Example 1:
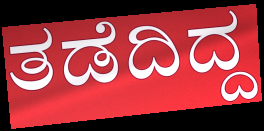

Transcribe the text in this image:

ತಡೆದಿದ್ದ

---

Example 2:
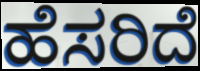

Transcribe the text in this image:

ಹೆಸರಿದೆ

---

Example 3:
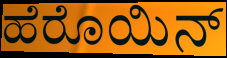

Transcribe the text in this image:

ಹೆರೊಯಿನ್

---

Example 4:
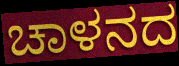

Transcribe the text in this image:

ಚಾಳನದ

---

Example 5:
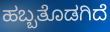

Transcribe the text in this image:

ಹಬ್ಬತೊಡಗಿದೆ